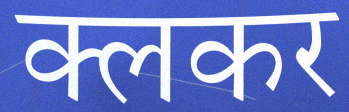
क्लकर